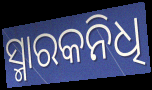
ସ୍ମାରକନିଧି